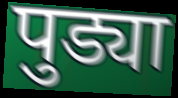
पुड्या